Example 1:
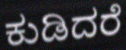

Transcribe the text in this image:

ಕುಡಿದರೆ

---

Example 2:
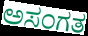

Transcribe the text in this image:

ಅಸಂಗತ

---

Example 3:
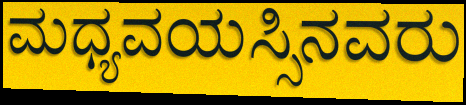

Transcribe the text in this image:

ಮಧ್ಯವಯಸ್ಸಿನವರು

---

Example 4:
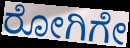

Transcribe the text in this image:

ರೋಗಿಗೇ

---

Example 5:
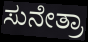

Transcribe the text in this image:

ಸುನೇತ್ರಾ